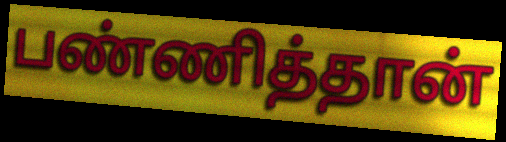
பண்ணித்தான்